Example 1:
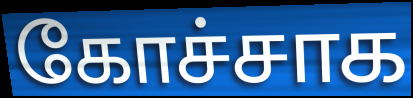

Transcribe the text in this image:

கோச்சாக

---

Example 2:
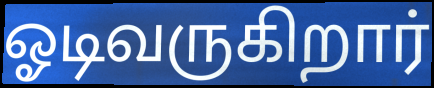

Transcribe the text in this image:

ஓடிவருகிறார்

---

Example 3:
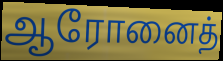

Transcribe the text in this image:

ஆரோனைத்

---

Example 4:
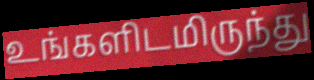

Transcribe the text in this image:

உங்களிடமிருந்து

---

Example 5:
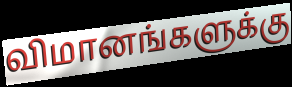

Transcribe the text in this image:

விமானங்களுக்கு